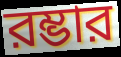
রম্ভার